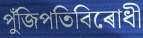
পুঁজিপতিবিৰোধী